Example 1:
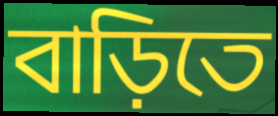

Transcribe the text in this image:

বাড়িতে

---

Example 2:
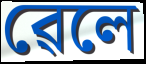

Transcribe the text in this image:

ৱেলে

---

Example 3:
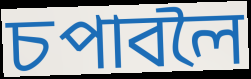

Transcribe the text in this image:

চপাবলৈ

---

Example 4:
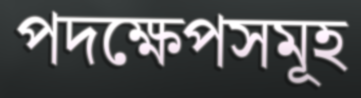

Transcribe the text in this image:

পদক্ষেপসমূহ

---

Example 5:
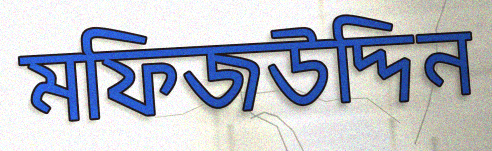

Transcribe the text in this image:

মফিজউদ্দিন